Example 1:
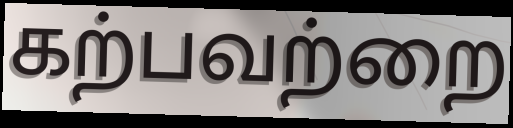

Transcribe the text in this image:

கற்பவற்றை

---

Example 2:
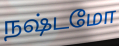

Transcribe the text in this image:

நஷ்டமோ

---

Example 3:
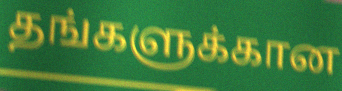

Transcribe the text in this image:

தங்களுக்கான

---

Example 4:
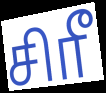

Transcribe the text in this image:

சிரீ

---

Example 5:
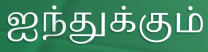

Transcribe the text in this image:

ஐந்துக்கும்